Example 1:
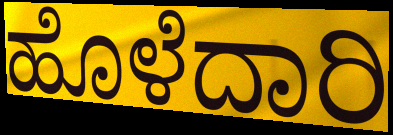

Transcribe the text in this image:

ಹೊಳೆದಾರಿ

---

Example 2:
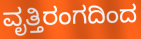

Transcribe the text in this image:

ವೃತ್ತಿರಂಗದಿಂದ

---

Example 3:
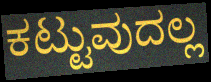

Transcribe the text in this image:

ಕಟ್ಟುವುದಲ್ಲ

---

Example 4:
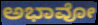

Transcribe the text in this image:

ಅಭಾವೋ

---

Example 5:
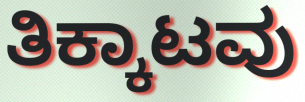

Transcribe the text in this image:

ತಿಕ್ಕಾಟವು